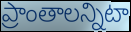
ప్రాంతాలన్నిటా